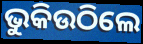
ଭୁକିଉଠିଲେ